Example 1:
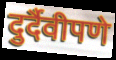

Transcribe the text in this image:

दुर्दैवीपणे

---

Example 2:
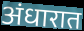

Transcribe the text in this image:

अंधारात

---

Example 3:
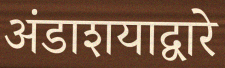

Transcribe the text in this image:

अंडाशयाद्वारे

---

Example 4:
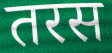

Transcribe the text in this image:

तरस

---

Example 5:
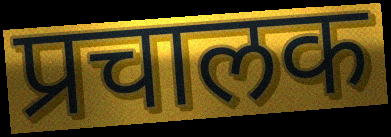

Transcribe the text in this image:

प्रचालक